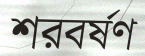
শরবর্ষণ